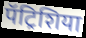
पॅट्रिशिया